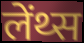
लेंथ्स